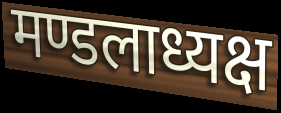
मण्डलाध्यक्ष